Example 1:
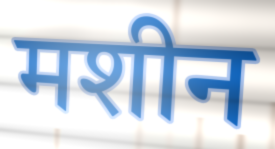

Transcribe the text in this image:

मशीन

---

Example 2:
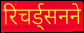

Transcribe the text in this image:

रिचर्ड्सनने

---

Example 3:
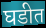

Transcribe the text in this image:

घडीत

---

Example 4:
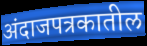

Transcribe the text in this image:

अंदाजपत्रकातील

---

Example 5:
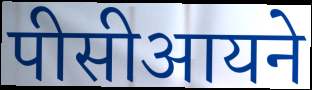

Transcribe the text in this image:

पीसीआयने